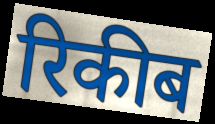
रिकीब